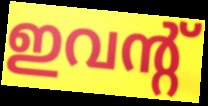
ഇവന്റ്